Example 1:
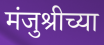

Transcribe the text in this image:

मंजुश्रीच्या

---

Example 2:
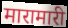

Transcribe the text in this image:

मारामारी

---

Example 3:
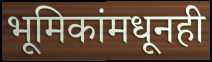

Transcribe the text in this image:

भूमिकांमधूनही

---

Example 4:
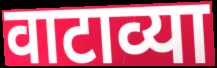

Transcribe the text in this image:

वाटाव्या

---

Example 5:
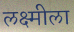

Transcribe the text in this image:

लक्ष्मीला